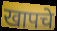
खापचे